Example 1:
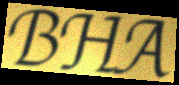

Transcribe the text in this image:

BHA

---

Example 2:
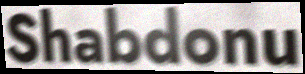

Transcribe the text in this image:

Shabdonu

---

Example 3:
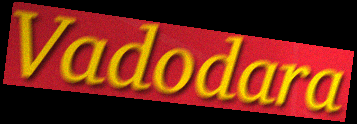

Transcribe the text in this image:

Vadodara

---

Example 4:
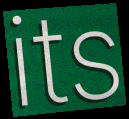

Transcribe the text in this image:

its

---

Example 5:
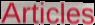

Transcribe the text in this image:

Articles